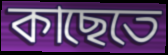
কাছেতে